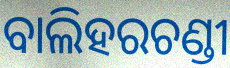
ବାଲିହରଚଣ୍ଡୀ